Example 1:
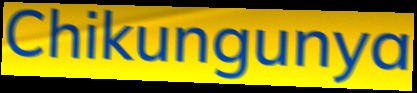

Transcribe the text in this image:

Chikungunya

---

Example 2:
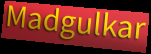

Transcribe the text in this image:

Madgulkar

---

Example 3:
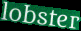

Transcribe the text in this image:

lobster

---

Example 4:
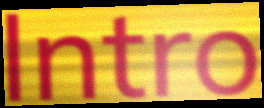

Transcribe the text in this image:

Intro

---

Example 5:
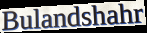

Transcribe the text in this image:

Bulandshahr